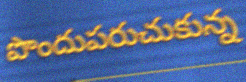
పొందుపరుచుకున్న